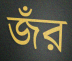
জঁর